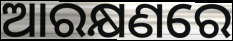
ଆରକ୍ଷଣରେ